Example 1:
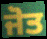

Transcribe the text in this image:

ਜੋਤ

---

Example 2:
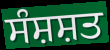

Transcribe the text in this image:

ਸੰਸ਼ਸ਼ਤ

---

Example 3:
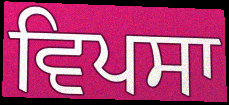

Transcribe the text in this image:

ਵਿਪਸਾ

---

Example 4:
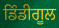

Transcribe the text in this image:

ਡਿੰਡੀਗੂਲ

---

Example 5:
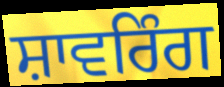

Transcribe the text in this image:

ਸ਼ਾਵਰਿੰਗ